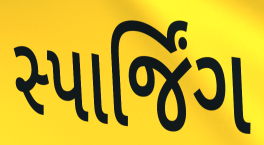
સ્પાર્જિંગ